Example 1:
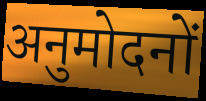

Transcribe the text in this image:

अनुमोदनों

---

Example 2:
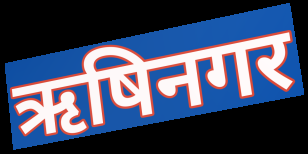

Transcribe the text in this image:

ऋषिनगर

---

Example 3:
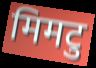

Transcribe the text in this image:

मिमटु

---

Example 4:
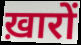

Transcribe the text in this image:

ख़ारों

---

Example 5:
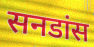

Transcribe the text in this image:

सनडांस